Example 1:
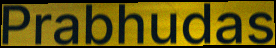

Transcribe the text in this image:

Prabhudas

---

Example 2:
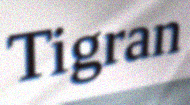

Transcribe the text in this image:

Tigran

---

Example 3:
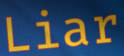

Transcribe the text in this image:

Liar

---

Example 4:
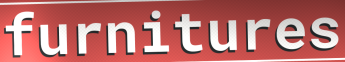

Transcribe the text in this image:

furnitures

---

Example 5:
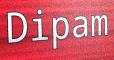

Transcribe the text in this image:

Dipam